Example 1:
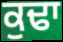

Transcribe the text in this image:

ਕੁਢਾ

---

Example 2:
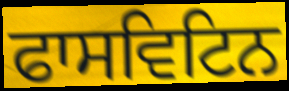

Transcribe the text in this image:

ਫਾਸਵਿਟਿਨ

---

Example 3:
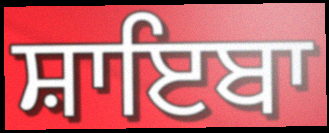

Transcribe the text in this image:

ਸ਼ਾਇਬਾ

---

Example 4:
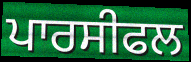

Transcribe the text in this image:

ਪਾਰਸੀਫਲ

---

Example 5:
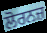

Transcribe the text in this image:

ਲੋਰਨਜ਼